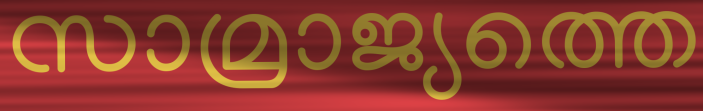
സാമ്രാജ്യത്തെ